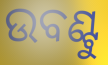
ଉବଣ୍ଟୁ